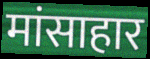
मांसाहार